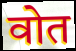
वोत